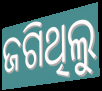
ଜଗିଥିଲୁ